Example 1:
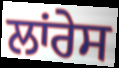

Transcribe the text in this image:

ਲਾਂਰੇਸ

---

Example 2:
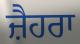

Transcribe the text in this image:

ਜ਼ੈਹਰਾ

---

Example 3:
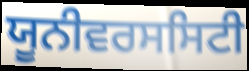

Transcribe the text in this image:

ਯੂਨੀਵਰਸਸਿਟੀ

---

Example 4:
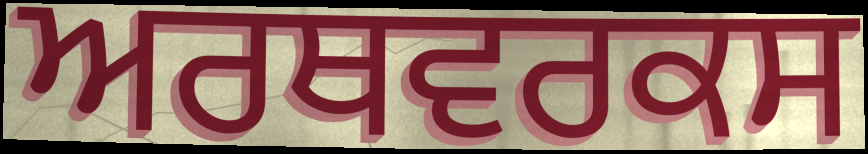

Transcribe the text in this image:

ਅਰਥਵਰਕਸ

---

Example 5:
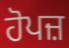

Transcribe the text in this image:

ਹੋਪਜ਼